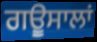
ਗਊਸਾਲਾਂ